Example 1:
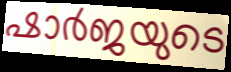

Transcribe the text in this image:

ഷാർജയുടെ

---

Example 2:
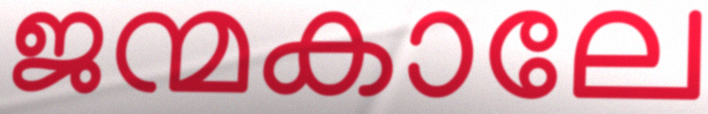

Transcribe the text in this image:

ജന്മകാലേ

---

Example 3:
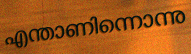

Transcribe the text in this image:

എന്താണിന്നൊന്നു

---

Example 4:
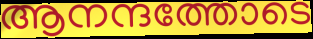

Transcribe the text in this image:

ആനന്ദത്തോടെ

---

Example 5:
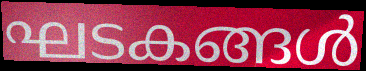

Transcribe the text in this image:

ഘടകങ്ങൾ